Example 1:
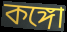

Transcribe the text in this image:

কঙ্গো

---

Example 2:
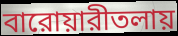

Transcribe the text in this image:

বারোয়ারীতলায়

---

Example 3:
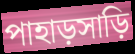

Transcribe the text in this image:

পাহাড়সাড়ি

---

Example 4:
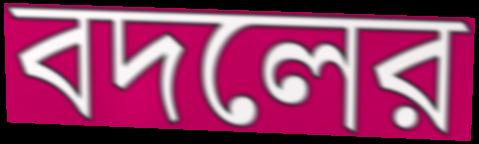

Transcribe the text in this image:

বদলের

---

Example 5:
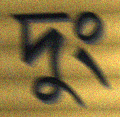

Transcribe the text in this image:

দুং